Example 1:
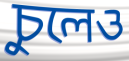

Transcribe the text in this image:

চুলেও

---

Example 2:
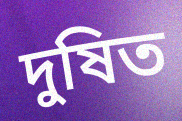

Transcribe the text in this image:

দুষিত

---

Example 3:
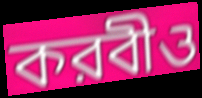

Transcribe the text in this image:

করবীও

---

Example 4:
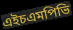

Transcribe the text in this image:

এইচএমপিভি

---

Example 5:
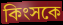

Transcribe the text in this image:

কিংসকে